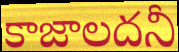
కాజాలదనీ